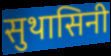
सुथासिनी